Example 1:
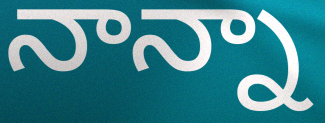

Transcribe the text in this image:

నాన్నా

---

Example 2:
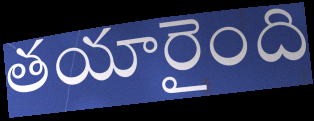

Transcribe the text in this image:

తయారైంది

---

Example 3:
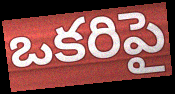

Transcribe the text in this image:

ఒకరిపై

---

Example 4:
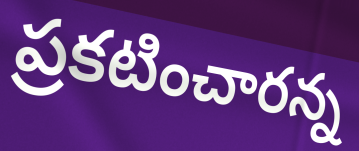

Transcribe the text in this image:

ప్రకటించారన్న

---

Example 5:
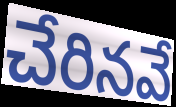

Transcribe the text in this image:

చేరినవే